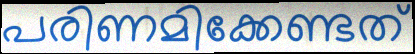
പരിണമിക്കേണ്ടത്